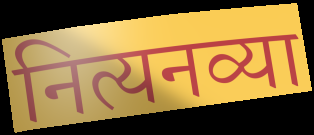
नित्यनव्या